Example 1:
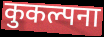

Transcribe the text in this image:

कुकल्पना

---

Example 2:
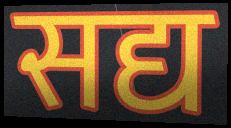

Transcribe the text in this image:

सद्य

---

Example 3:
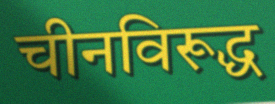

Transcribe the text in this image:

चीनविरूद्ध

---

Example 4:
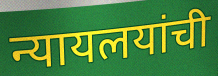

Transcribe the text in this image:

न्यायलयांची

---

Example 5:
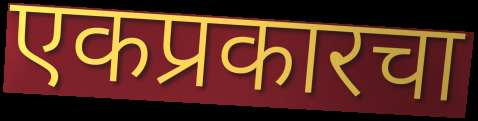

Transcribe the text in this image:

एकप्रकारचा